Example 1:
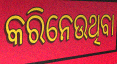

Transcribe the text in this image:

କରିନେଉଥିବା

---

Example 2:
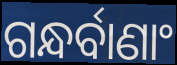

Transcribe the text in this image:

ଗନ୍ଧର୍ବାଣାଂ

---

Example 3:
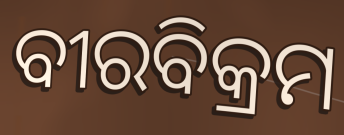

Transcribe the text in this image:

ବୀରବିକ୍ରମ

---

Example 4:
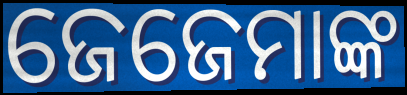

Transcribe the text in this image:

ଜେଜେମାଙ୍କ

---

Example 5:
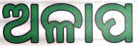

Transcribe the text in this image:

ଅଳାପ